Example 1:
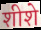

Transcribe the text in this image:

शीशे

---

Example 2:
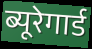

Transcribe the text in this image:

ब्यूरेगार्ड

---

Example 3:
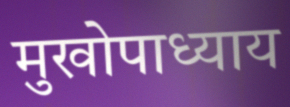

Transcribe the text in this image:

मुखोपाध्‍याय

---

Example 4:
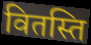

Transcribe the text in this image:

वितस्ति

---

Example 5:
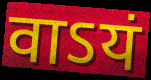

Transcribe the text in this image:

वाऽयं